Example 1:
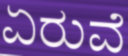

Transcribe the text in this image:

ಏರುವೆ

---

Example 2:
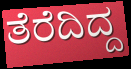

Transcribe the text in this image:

ತೆರೆದಿದ್ದ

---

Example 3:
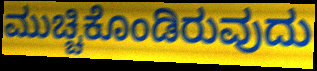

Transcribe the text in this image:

ಮುಚ್ಚಿಕೊಂಡಿರುವುದು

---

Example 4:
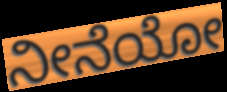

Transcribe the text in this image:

ನೀನೆಯೋ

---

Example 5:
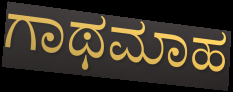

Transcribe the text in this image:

ಗಾಥಮಾಹ